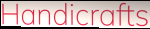
Handicrafts